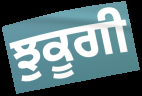
ਝੁਕੂਗੀ